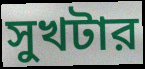
সুখটার